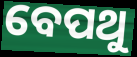
ବେପଥୁ